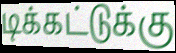
டிக்கட்டுக்கு